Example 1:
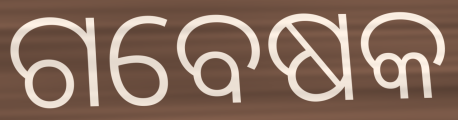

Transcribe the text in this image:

ଗବେଷକ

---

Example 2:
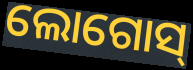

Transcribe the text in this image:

ଲୋଗୋସ୍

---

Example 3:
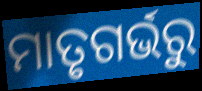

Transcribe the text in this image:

ମାତୃଗର୍ଭରୁ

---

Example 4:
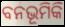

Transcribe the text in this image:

ବନଭୂମିକି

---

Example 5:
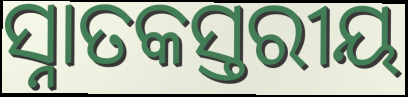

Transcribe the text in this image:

ସ୍ନାତକସ୍ତରୀୟ